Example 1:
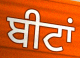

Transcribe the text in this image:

ਬੀਟਾਂ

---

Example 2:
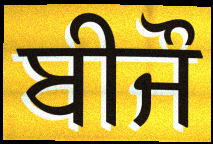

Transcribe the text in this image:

ਬੀਜੌ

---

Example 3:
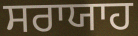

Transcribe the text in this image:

ਸਰਾਯਾਹ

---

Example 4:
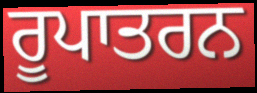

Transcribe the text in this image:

ਰੂਪਾਤਰਨ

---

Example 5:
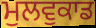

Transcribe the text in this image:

ਮੁਲਵੁਕਾਡ